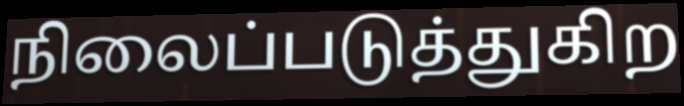
நிலைப்படுத்துகிற